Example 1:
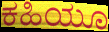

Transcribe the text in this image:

ಕಹಿಯೂ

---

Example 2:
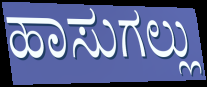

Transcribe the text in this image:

ಹಾಸುಗಲ್ಲು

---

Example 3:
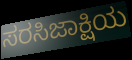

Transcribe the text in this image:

ಸರಸಿಜಾಕ್ಷಿಯ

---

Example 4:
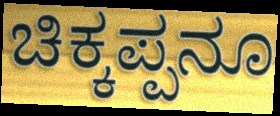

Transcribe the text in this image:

ಚಿಕ್ಕಪ್ಪನೂ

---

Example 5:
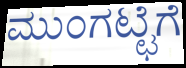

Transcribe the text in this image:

ಮುಂಗಟ್ಟೆಗೆ